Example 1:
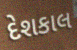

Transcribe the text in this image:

દેશકાલ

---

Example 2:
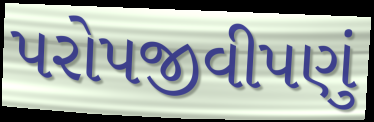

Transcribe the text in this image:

પરોપજીવીપણું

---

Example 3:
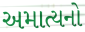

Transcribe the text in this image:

અમાત્યનો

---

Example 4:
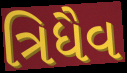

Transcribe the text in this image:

ત્રિધૈવ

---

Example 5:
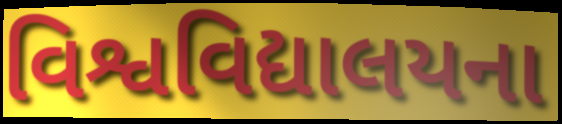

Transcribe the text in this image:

વિશ્વવિદ્યાલયના